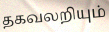
தகவலறியும்